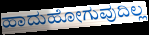
ಹಾದುಹೋಗುವುದಿಲ್ಲ